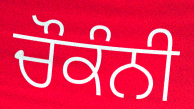
ਚੌਕੰਨੀ